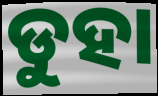
ଡୁହା